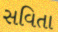
સવિતા